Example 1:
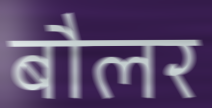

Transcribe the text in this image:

बौलर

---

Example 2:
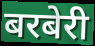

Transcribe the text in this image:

बरबेरी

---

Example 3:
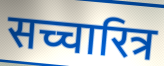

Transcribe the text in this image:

सच्चारित्र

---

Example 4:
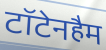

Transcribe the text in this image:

टॉटेनहैम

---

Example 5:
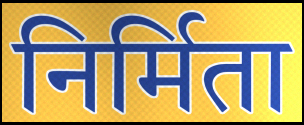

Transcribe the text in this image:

निर्मिता